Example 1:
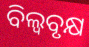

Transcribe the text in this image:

ବିଲ୍ୱବୃକ୍ଷ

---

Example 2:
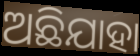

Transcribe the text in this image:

ଅଛିଯାହା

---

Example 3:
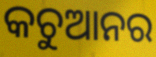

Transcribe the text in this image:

କଚୁଆନର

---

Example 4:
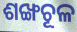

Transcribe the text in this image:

ଶଙ୍ଖଚୂଳ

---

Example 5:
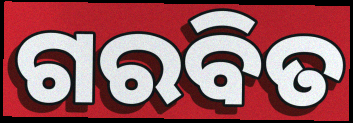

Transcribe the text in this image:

ଗରବିତ